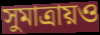
সুমাত্রায়ও